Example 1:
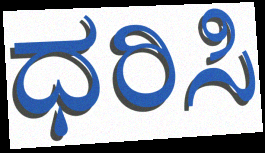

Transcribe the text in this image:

ಧರಿಸಿ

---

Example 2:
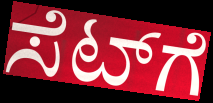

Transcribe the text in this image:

ಸೆಟ್‌ಗೆ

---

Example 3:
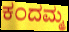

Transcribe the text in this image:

ಕಂದಮ್ಮ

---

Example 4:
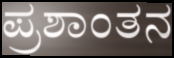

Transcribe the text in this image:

ಪ್ರಶಾಂತನ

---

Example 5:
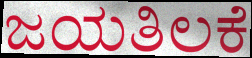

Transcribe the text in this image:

ಜಯತಿಲಕೆ